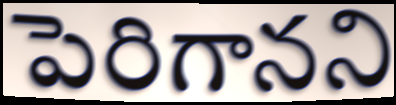
పెరిగానని